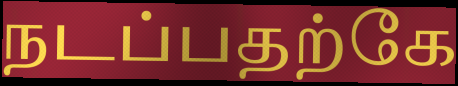
நடப்பதற்கே